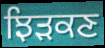
ਝਿੜਕਣ